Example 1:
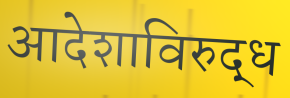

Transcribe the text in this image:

आदेशाविरुद्ध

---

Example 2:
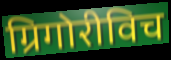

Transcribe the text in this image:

ग्रिगोरीविच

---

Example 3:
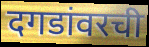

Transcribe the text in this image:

दगडांवरची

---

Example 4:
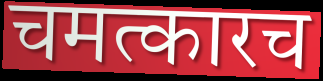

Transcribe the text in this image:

चमत्कारच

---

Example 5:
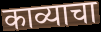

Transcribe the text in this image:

काव्याचा